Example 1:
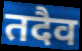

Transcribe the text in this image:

तदैव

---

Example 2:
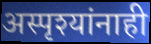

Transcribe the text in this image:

अस्पृश्यांनाही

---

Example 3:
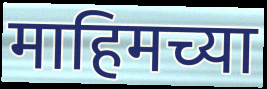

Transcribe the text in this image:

माहिमच्या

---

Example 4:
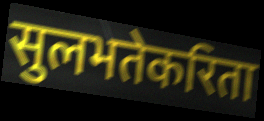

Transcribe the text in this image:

सुलभतेकरिता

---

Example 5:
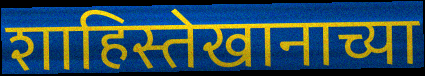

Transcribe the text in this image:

शाहिस्तेखानाच्या